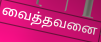
வைத்தவனை